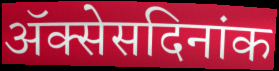
ॲक्सेसदिनांक